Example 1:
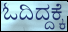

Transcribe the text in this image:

ಓದಿದ್ದಕ್ಕೆ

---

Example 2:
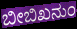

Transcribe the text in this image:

ಬೀಬಿಖನುಂ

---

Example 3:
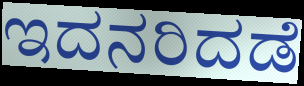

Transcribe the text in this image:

ಇದನರಿದಡೆ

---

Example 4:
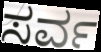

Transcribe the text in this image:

ಸರ್ವ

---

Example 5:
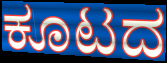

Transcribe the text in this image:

ಕೂಟದ